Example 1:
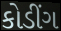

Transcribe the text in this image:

કોડીંગ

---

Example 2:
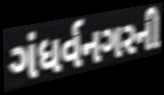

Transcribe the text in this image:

ગંધર્વનગરની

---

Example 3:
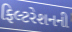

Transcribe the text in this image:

ફિલ્ટરેશનની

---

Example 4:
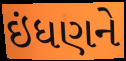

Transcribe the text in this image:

ઇંધણને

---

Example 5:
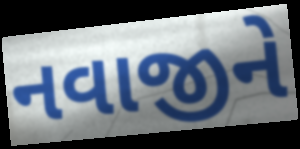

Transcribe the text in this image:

નવાજીને